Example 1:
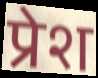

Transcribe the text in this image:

प्रेश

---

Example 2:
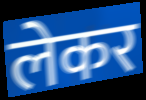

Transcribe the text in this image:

लेकर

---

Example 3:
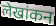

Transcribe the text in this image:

लेखांकन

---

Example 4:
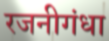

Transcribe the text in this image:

रजनीगंधा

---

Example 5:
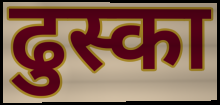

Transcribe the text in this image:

ढुस्का